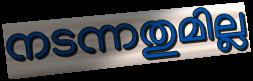
നടന്നതുമില്ല